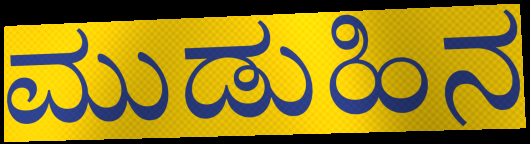
ಮುಡುಹಿನ